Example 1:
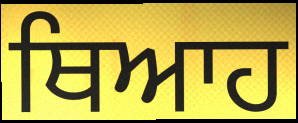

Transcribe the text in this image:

ਥਿਆਹ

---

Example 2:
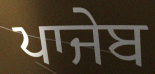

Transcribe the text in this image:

ਪਾਜੇਬ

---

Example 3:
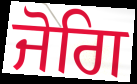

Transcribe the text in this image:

ਜੋਗਿ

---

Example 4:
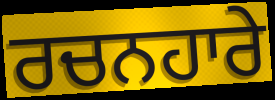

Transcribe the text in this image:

ਰਚਨਹਾਰੇ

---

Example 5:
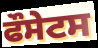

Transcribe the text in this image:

ਫੌਸੇਟਸ